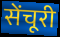
सेंचूरी